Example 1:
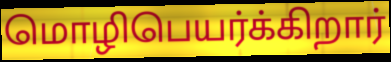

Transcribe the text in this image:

மொழிபெயர்க்கிறார்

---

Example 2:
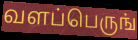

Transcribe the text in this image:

வளப்பெருங்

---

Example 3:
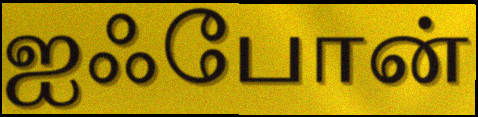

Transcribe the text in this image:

ஐஃபோன்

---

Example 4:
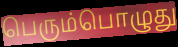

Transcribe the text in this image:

பெரும்பொழுது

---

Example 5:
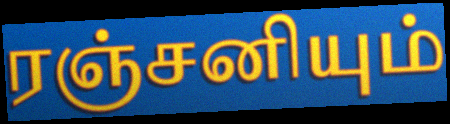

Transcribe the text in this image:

ரஞ்சனியும்